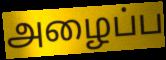
அழைப்ப